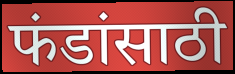
फंडांसाठी